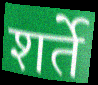
शर्ते